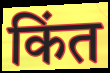
किंत